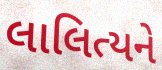
લાલિત્યને